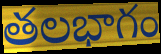
తలభాగం